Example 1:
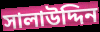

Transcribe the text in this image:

সালাউদ্দিন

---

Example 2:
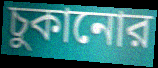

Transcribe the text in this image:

চুকানোর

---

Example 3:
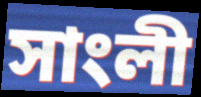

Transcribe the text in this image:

সাংলী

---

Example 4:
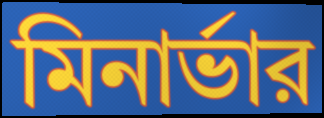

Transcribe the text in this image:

মিনার্ভার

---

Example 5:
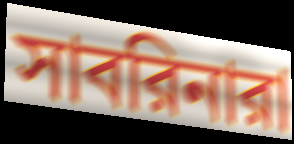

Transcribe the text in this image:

সাবরিনারা